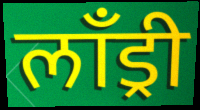
लॉंड्री